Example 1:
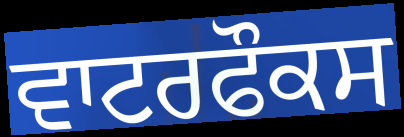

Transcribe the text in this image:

ਵਾਟਰਫੌਕਸ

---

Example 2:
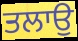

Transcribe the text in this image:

ਤਲਾਉ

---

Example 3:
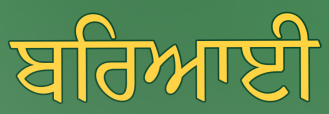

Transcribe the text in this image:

ਬਰਿਆਈ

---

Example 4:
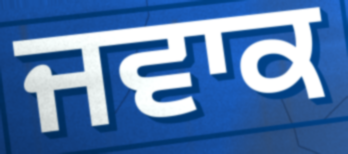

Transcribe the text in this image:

ਜਵਾਕ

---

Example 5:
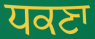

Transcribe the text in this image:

ਧਕਣਾ